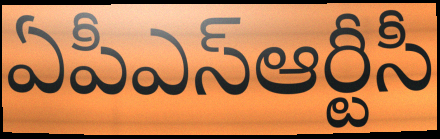
ఏపీఎస్ఆర్టీసీ